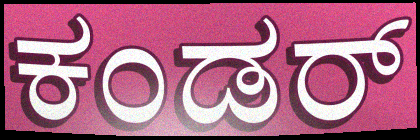
ಕಂಡರ್